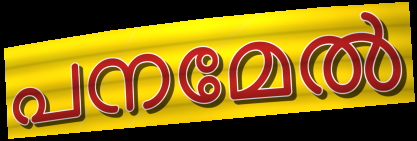
പനമേൽ